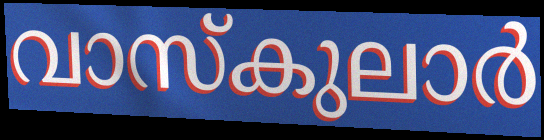
വാസ്കുലാർ